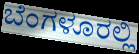
ಬೆಂಗಳೂರಲ್ಲಿ